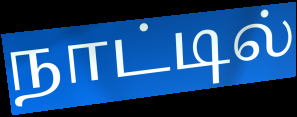
நாட்டில்